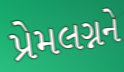
પ્રેમલગ્નને